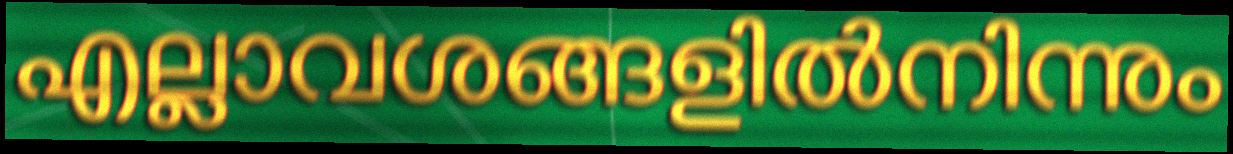
എല്ലാവശങ്ങളിൽനിന്നും